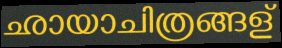
ഛായാചിത്രങ്ങള്